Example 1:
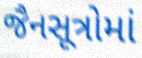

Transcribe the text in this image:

જૈનસૂત્રોમાં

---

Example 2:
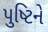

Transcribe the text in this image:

પુષ્ટિને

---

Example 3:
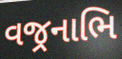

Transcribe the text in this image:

વજ્રનાભિ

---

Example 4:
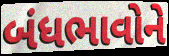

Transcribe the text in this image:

બંધભાવોને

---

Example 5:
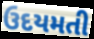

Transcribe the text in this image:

ઉદયમતી